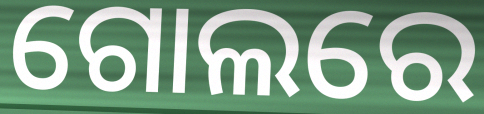
ଗୋଲରେ